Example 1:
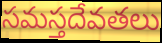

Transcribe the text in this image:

సమస్తదేవతలు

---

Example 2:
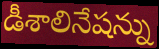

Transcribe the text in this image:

డీశాలినేషన్ను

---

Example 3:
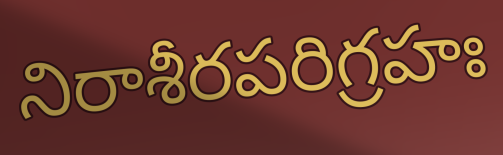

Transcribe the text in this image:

నిరాశీరపరిగ్రహః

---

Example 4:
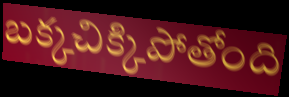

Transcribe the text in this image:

బక్కచిక్కిపోతోంది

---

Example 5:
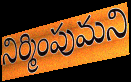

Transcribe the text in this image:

నిర్మింపుమని